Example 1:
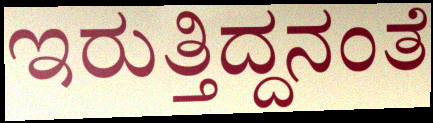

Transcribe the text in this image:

ಇರುತ್ತಿದ್ದನಂತೆ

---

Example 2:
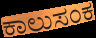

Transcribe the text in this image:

ಕಾಲುಸಂಕ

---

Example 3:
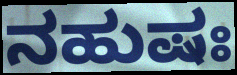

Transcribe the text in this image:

ನಹುಷಃ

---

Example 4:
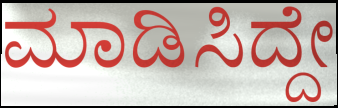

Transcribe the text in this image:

ಮಾಡಿಸಿದ್ದೇ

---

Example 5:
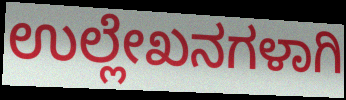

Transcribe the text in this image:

ಉಲ್ಲೇಖನಗಳಾಗಿ